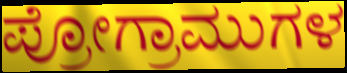
ಪ್ರೋಗ್ರಾಮುಗಳ